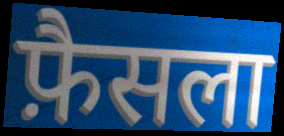
फ़ैसला